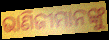
ଭାଣିଜୀମାନଙ୍କୁ